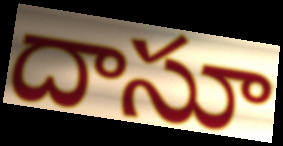
దాసూ